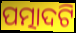
ପତ୍ମାଦଟି